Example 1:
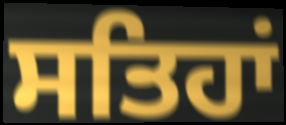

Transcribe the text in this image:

ਸਤਿਹਾਂ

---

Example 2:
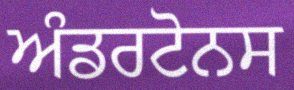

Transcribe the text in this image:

ਅੰਡਰਟੋਨਸ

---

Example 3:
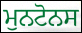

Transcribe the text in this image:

ਮੁਨਟੋਨਸ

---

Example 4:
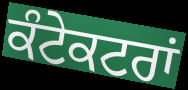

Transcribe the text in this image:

ਕੰਟੇਕਟਰਾਂ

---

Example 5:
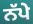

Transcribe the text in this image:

ਨੱਪੇ